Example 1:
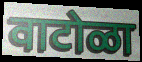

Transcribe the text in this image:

वाटोळा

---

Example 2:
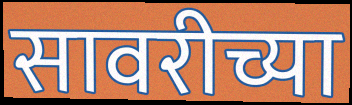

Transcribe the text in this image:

सावरीच्या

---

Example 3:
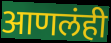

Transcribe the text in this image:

आणलंही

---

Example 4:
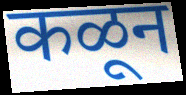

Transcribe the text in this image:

कळून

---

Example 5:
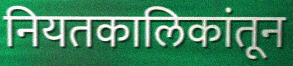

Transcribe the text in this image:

नियतकालिकांतून